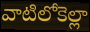
వాటిలోకెల్లా